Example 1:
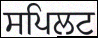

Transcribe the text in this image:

ਸਪਿਲਟ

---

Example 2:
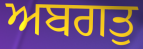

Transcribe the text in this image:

ਅਬਗਤੁ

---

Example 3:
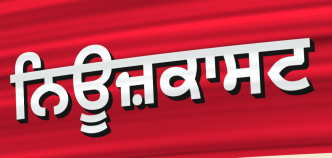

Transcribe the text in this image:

ਨਿਊਜ਼ਕਾਸਟ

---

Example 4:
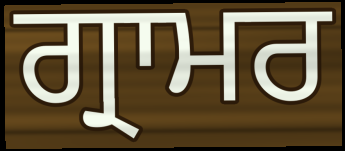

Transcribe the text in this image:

ਗ੍ਰਾਮਰ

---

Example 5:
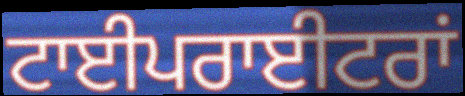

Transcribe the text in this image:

ਟਾਈਪਰਾਈਟਰਾਂ